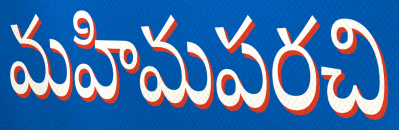
మహిమపరచి